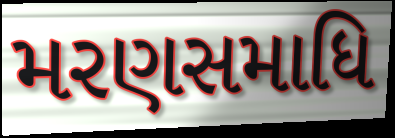
મરણસમાધિ